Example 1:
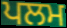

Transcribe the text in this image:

ਪਲਮ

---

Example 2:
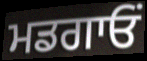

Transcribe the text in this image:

ਮਡਗਾਓਂ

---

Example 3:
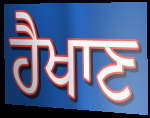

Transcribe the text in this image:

ਹੈਖਾਣ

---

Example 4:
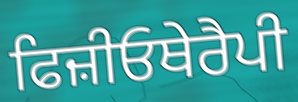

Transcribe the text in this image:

ਫਿਜ਼ੀਓਥੇਰੈਪੀ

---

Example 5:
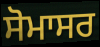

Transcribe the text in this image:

ਸੋਮਾਸਰ